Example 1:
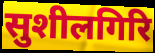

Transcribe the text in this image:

सुशीलगिरि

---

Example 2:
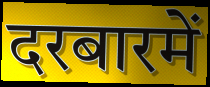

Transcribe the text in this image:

दरबारमें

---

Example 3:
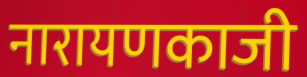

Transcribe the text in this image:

नारायणकाजी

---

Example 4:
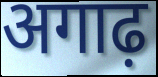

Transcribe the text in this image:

अगाढ़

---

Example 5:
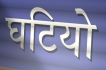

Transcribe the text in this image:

घटियो